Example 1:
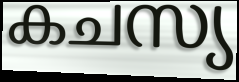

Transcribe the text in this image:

കചസ്യ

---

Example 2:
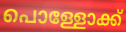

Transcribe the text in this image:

പൊള്ളോക്ക്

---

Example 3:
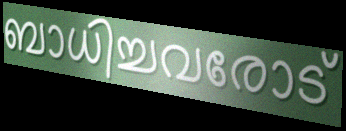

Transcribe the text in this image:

ബാധിച്ചവരോട്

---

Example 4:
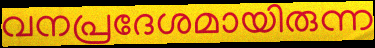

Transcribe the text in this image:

വനപ്രദേശമായിരുന്ന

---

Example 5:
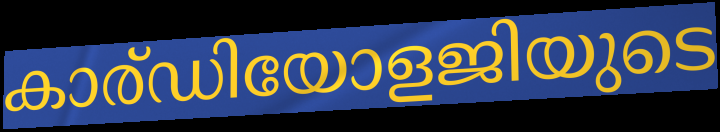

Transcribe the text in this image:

കാര്ഡിയോളജിയുടെ